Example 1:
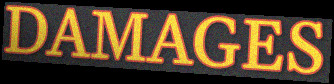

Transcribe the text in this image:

DAMAGES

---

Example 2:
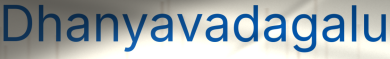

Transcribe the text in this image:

Dhanyavadagalu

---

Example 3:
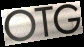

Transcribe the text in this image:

OTG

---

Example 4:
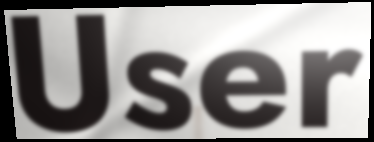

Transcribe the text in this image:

User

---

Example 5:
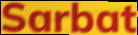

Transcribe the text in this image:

Sarbat